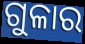
ଗୁଳାର